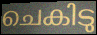
ചെകിടു